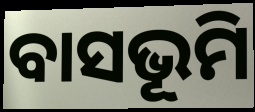
ବାସଭୂମି